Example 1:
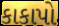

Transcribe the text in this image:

કાકાપો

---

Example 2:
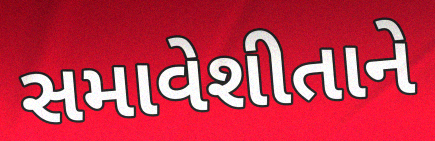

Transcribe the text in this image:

સમાવેશીતાને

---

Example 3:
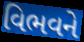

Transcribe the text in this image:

વિભવને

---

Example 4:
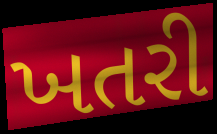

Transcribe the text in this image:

ખતરી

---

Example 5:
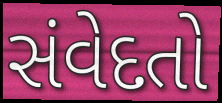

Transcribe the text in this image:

સંવેદતો